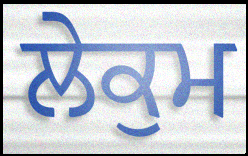
ਲੇਕੁਮ